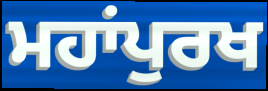
ਮਹਾਂਪੁਰਖ